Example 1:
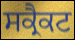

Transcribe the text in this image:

ਸਕ੍ਰੈਕਟ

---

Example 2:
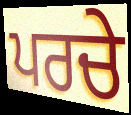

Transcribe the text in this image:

ਪਰਚੇ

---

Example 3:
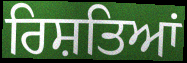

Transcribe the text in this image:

ਰਿਸ਼ਤਿਆਂ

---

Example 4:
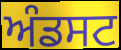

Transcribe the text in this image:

ਅੰਡਸਟ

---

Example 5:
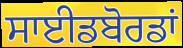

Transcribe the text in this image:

ਸਾਈਡਬੋਰਡਾਂ